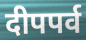
दीपपर्व